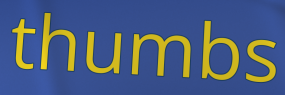
thumbs